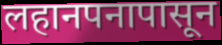
लहानपनापासून